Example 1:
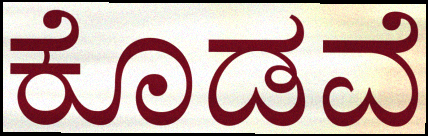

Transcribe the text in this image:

ಕೊಡವೆ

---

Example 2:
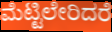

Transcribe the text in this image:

ಮೆಟ್ಟಿಲೇರಿದರೆ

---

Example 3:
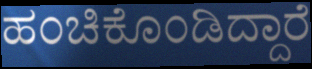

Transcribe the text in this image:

ಹಂಚಿಕೊಂಡಿದ್ದಾರೆ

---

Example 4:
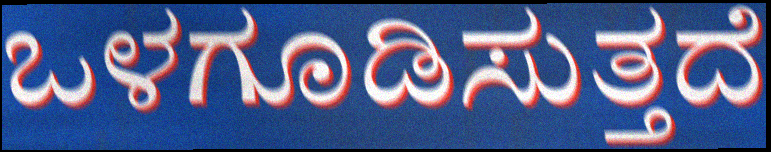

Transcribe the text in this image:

ಒಳಗೂಡಿಸುತ್ತದೆ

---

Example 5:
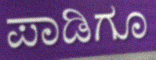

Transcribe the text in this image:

ಪಾಡಿಗೂ